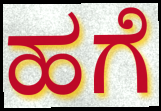
ಹಗೆ